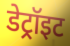
डेट्रॉइट